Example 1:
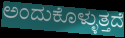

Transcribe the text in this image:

ಅಂದುಕೊಳ್ಳುತ್ತದೆ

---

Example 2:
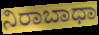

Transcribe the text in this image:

ನಿರಾಬಾಧಾ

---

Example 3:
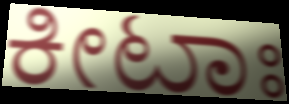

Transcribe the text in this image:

ಕೀಟಾಃ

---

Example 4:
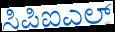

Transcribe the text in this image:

ಸಿಪಿಐಎಲ್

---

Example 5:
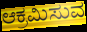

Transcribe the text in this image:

ಆಕ್ರಮಿಸುವ